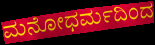
ಮನೋಧರ್ಮದಿಂದ